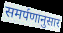
समर्पणानुसार